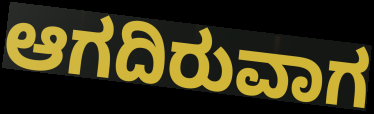
ಆಗದಿರುವಾಗ